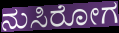
ನುಸಿರೋಗ